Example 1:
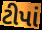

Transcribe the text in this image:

ટીપાં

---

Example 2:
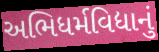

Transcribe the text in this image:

અભિધર્મવિદ્યાનું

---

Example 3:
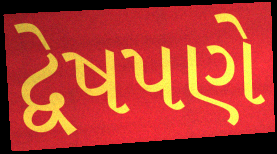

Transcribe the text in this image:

દ્વેષપણે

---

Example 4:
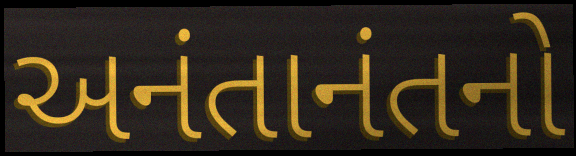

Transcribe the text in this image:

અનંતાનંતનો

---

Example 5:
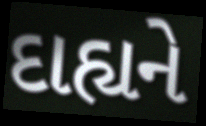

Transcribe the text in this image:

દાહ્યને